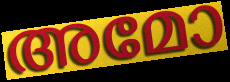
അമോ